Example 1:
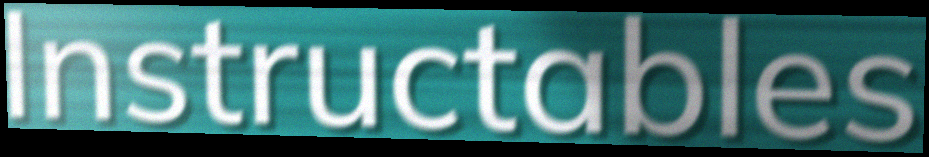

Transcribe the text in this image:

Instructables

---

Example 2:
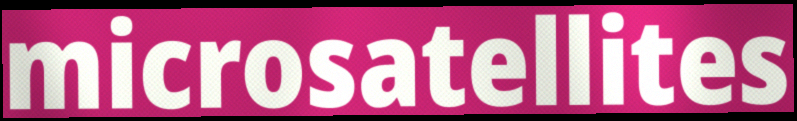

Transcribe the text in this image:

microsatellites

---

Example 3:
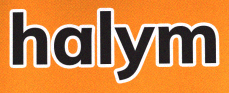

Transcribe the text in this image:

halym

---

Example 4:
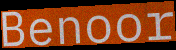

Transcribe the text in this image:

Benoor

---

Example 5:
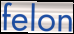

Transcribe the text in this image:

felon